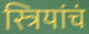
स्त्रियांचं